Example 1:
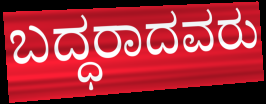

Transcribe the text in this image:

ಬದ್ಧರಾದವರು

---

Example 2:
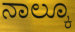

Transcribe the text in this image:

ನಾಲ್ಕೂ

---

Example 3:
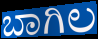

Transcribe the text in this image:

ಬಾಗಿಲ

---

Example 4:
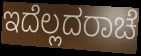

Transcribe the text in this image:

ಇದೆಲ್ಲದರಾಚೆ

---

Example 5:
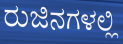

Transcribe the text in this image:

ರುಜಿನಗಳಲ್ಲಿ